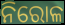
ନିରୋଳ